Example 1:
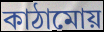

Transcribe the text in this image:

কাঠামোয়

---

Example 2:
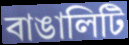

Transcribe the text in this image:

বাঙালিটি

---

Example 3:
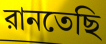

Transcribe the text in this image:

রানতেছি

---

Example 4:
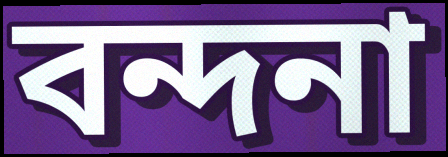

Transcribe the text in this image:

বন্দনা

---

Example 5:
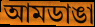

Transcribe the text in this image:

আমডাঙা